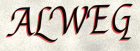
ALWEG